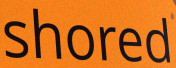
shored